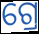
ଗ୍ରେ